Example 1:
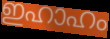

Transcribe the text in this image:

ഇഹാഹം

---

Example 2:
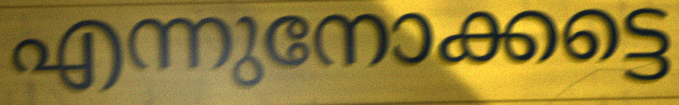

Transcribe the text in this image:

എന്നുനോക്കട്ടെ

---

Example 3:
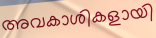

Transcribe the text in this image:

അവകാശികളായി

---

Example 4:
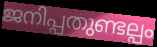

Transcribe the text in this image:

ജനിപ്പതുണ്ടല്പം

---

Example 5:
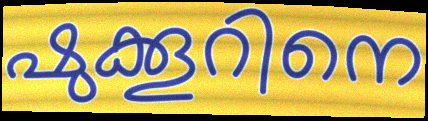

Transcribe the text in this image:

ഷുക്കൂറിനെ